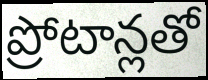
ప్రోటాన్లతో